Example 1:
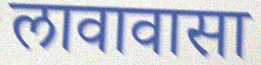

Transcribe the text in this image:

लावावासा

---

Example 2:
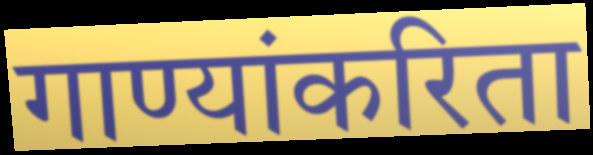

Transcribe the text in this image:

गाण्यांकरिता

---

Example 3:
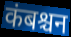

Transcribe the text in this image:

कंबश्चन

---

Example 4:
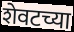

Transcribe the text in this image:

शेवटच्या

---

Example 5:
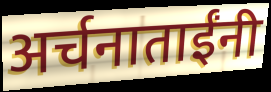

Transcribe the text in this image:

अर्चनाताईंनी